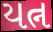
યત્ન